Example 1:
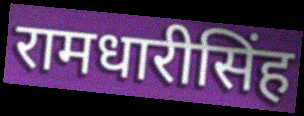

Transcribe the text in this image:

रामधारीसिंह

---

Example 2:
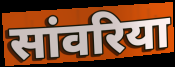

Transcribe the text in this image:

सांवरिया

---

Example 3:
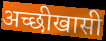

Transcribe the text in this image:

अच्छीखासी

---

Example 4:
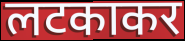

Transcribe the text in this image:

लटकाकर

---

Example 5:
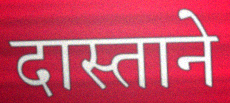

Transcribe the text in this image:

दास्ताने